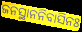
ଜନସ୍ଥାନନିବାସିନଃ